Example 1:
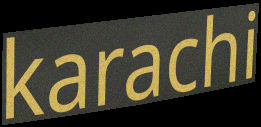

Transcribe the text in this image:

karachi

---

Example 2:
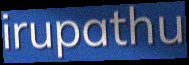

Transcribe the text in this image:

irupathu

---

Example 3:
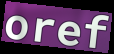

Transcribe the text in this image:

oref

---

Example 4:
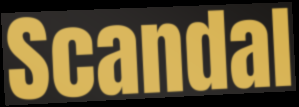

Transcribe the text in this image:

Scandal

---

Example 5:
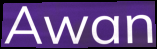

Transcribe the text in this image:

Awan